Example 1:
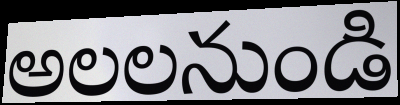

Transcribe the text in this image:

అలలనుండి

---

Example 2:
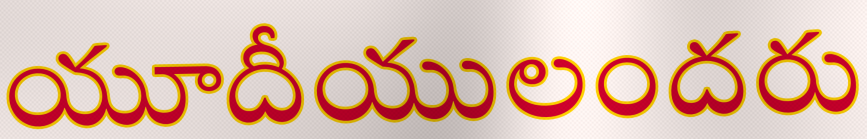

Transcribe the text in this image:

యూదీయులందరు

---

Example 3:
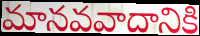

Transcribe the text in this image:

మానవవాదానికి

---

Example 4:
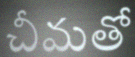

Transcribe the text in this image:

చీమతో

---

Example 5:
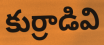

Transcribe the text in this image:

కుర్రాడివి